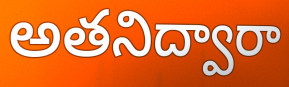
అతనిద్వారా